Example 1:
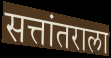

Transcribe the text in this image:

सत्तांतराला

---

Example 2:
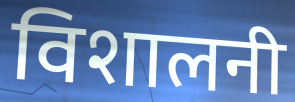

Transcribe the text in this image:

विशालनी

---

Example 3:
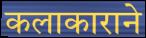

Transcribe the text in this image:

कलाकाराने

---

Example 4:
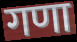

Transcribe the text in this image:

गणा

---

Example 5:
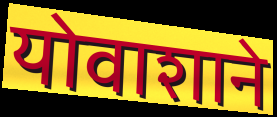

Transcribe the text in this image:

योवाशाने